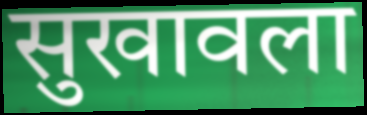
सुखावला